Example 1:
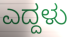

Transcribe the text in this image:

ಎದ್ದಳು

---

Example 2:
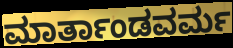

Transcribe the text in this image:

ಮಾರ್ತಾಂಡವರ್ಮ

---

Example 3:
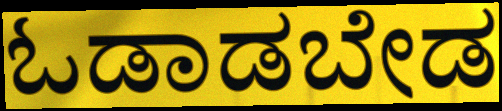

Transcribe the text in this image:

ಓಡಾಡಬೇಡ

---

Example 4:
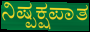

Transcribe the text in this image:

ನಿಷ್ಪಕ್ಷಪಾತ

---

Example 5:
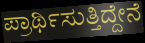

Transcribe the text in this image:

ಪ್ರಾರ್ಥಿಸುತ್ತಿದ್ದೇನೆ